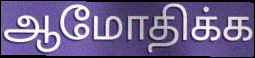
ஆமோதிக்க